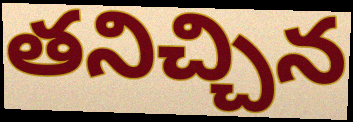
తనిచ్చిన